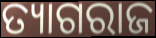
ତ୍ୟାଗରାଜ